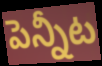
పెన్నీట